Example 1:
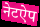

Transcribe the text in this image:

नेटऐप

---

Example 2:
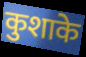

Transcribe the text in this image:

कुशाके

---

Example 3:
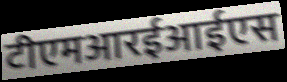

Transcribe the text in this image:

टीएमआरईआईएस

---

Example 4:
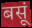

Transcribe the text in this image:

बसूं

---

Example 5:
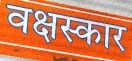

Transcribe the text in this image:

वक्षस्कार